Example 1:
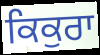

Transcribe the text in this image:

ਕਿਕੁਰਾ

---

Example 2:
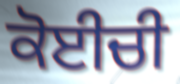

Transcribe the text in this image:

ਕੋਈਚੀ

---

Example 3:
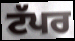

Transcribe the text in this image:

ਟੱਪਰ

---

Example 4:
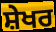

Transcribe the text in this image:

ਸ਼ੇਖਰ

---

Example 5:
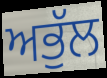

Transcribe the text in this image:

ਅਭੁੱਲ